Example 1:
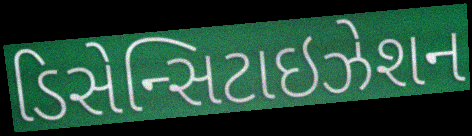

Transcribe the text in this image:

ડિસેન્સિટાઇઝેશન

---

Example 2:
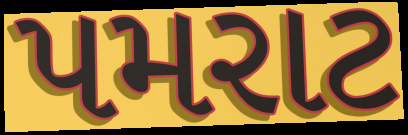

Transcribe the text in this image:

પમરાટ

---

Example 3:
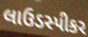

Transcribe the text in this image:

લાઉડસ્પીકર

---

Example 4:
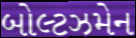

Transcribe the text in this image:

બોલ્ટઝમેન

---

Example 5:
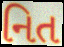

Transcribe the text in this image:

નિત